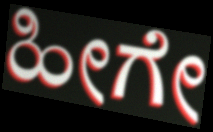
ಹೀಗೇ